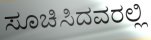
ಸೂಚಿಸಿದವರಲ್ಲಿ